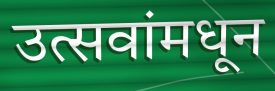
उत्सवांमधून